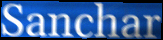
Sanchar